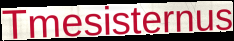
Tmesisternus